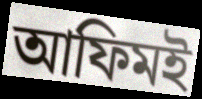
আফিমই